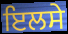
ਇਲਸੇ